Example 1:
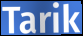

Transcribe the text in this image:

Tarik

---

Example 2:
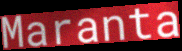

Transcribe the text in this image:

Maranta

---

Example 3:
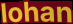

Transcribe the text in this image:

lohan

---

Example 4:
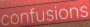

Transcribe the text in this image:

confusions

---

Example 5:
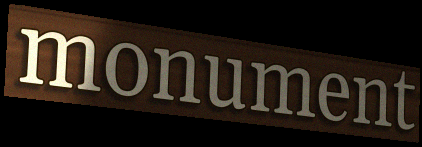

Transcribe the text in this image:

monument